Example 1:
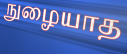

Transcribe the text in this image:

நுழையாத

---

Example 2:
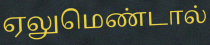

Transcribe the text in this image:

ஏலுமெண்டால்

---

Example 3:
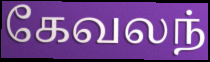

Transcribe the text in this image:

கேவலந்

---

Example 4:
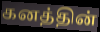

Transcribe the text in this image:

கனத்தின்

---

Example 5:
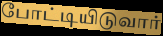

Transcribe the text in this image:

போட்டியிடுவார்